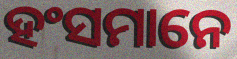
ହଂସମାନେ